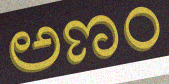
ಅಣಂ